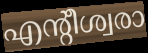
എന്റീശ്വരാ